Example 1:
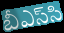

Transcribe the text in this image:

బీఎస్‌సి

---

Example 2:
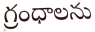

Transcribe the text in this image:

గ్రంధాలను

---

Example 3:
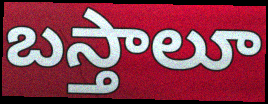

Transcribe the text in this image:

బస్తాలూ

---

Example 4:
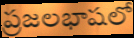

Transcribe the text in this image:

ప్రజలభాషలో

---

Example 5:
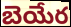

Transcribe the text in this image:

బెయేర